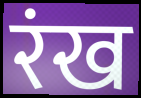
रंख